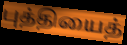
புத்தியைத்